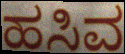
ಹಸಿವ